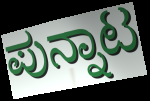
ಪುನ್ನಾಟ